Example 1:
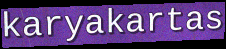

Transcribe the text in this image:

karyakartas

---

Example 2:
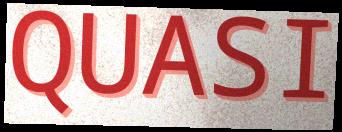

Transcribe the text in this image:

QUASI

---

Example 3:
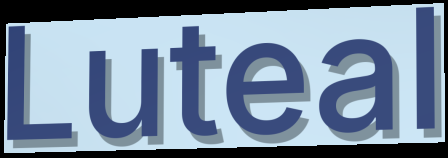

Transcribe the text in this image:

Luteal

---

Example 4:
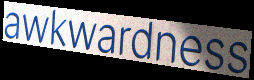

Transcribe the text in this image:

awkwardness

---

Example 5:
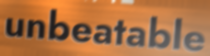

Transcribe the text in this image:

unbeatable